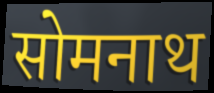
सोमनाथ